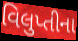
વિલુપ્તીના